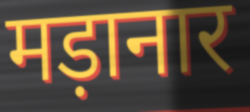
मड़ानार